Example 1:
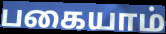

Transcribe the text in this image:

பகையாம்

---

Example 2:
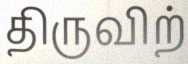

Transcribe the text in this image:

திருவிற்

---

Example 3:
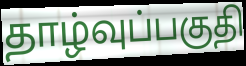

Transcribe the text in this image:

தாழ்வுப்பகுதி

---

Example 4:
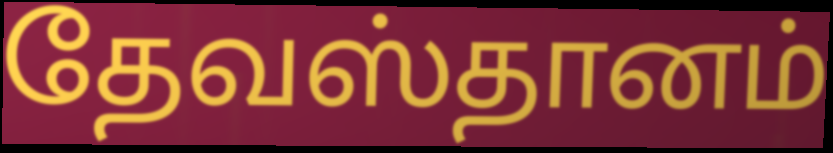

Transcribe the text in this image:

தேவஸ்தானம்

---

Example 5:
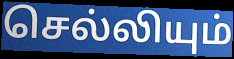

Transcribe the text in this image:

செல்லியும்